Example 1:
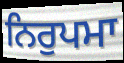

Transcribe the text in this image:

ਨਿਰੁਪਮਾ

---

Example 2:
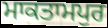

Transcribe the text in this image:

ਮਾਕਤਾਮਪੁਰ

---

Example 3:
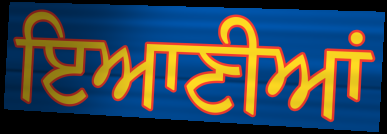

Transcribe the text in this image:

ਇਆਣੀਆਂ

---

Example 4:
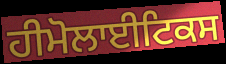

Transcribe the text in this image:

ਹੀਮੋਲਾਈਟਿਕਸ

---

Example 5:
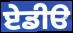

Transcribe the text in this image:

ਏਡੀੳ